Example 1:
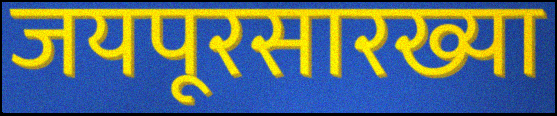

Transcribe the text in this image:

जयपूरसारख्या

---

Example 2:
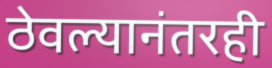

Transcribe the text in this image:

ठेवल्यानंतरही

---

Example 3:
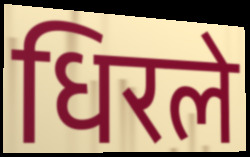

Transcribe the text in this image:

धिरले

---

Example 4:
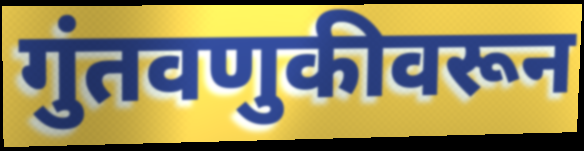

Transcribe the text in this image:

गुंतवणुकीवरून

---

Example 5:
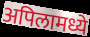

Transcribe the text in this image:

अपिलामध्ये